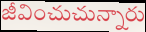
జీవించుచున్నారు